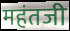
महंतजी